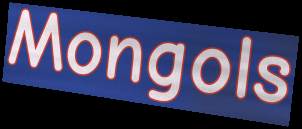
Mongols